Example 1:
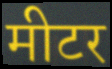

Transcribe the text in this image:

मीटर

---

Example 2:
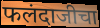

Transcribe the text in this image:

फलंदाजीचा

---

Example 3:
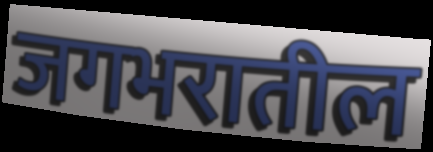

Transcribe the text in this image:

जगभरातील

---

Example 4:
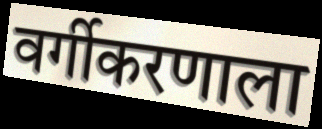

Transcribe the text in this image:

वर्गीकरणाला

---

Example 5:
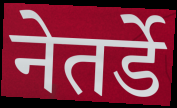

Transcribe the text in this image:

नेतर्डे